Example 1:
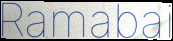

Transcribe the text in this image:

Ramabai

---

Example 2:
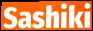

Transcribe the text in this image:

Sashiki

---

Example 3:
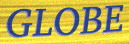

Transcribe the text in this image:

GLOBE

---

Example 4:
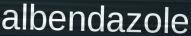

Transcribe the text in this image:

albendazole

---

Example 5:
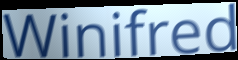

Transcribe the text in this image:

Winifred